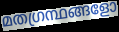
മതഗ്രന്ഥങ്ങളോ